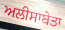
ਅਲੀਸਾਬੇਤਾ